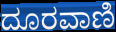
ದೂರವಾಣಿ